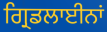
ਗ੍ਰਿਡਲਾਈਨਾਂ